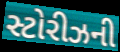
સ્ટોરીઝની